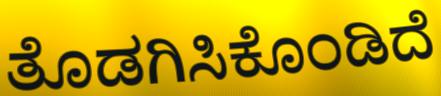
ತೊಡಗಿಸಿಕೊಂಡಿದೆ